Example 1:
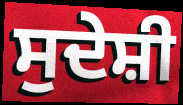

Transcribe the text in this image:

ਸੁਦੇਸ਼ੀ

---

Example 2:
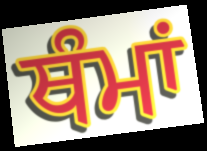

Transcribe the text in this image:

ਥੰਮਾਂ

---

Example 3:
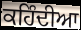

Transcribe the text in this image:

ਕਹਿੰਦੀਆ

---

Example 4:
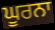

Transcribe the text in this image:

ਘੂਰਨਾ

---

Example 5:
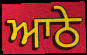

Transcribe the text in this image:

ਆਠੇ